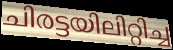
ചിരട്ടയിലിറ്റിച്ച